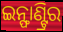
ଇନ୍ଫାଣ୍ଟ୍ରିର